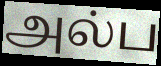
அல்ப